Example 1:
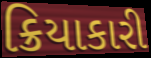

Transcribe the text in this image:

ક્રિયાકારી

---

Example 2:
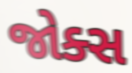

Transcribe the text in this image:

જોક્સ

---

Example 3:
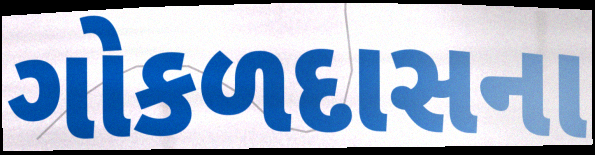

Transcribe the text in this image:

ગોકળદાસના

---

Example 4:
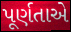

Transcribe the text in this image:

પૂર્ણતાએ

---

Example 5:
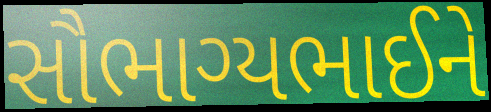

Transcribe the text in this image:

સૌભાગ્યભાઈને